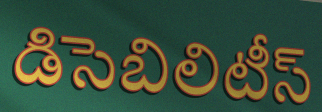
డిసెబిలిటీస్